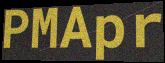
PMApr